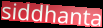
siddhanta